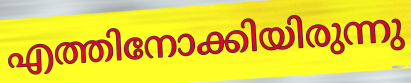
എത്തിനോക്കിയിരുന്നു